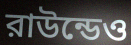
রাউন্ডেও